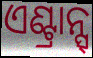
ଏଣ୍ଟ୍ରାନ୍ସ୍